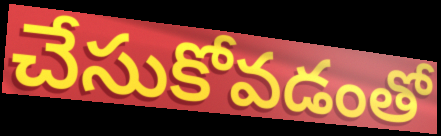
చేసుకోవడంతో